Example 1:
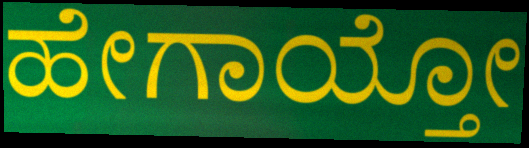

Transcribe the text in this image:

ಹೇಗಾಯ್ತೋ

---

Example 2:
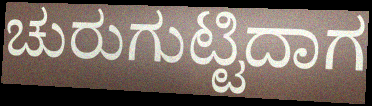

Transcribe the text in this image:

ಚುರುಗುಟ್ಟಿದಾಗ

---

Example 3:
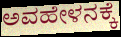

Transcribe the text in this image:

ಅವಹೇಳನಕ್ಕೆ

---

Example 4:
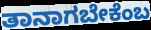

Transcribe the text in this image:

ತಾನಾಗಬೇಕೆಂಬ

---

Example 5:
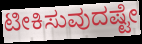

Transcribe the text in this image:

ಟೀಕಿಸುವುದಷ್ಟೇ